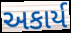
અકાર્ય